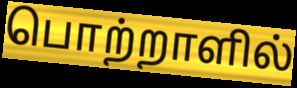
பொற்றாளில்